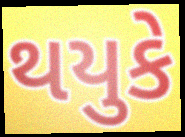
થયુકે